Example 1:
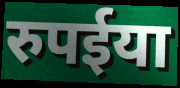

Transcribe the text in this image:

रुपईया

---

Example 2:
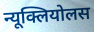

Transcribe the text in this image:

न्यूक्लियोलस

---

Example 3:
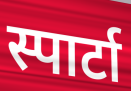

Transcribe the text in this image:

स्पार्टा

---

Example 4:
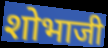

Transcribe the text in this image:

शोभाजी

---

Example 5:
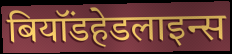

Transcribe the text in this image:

बियॉंडहेडलाइन्स